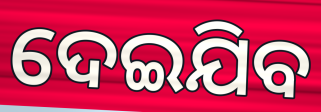
ଦେଇଯିବ